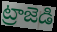
ట్రాజెడి